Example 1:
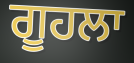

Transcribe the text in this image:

ਗੂਹਲਾ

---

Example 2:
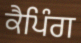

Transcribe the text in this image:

ਕੈਪਿੰਗ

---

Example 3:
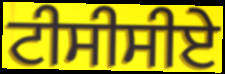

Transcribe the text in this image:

ਟੀਸੀਸੀਏ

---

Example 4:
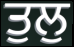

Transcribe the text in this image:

ਤੁਲੁ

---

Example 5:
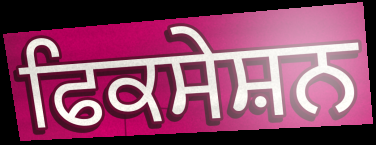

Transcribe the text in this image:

ਫਿਕਸੇਸ਼ਨ